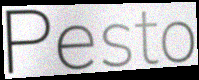
Pesto